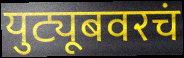
युट्यूबवरचं